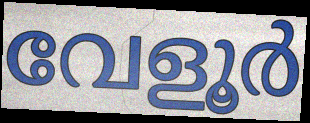
വേളൂർ